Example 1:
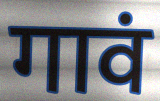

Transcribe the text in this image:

गावं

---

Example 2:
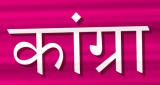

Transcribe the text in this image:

कांग्रा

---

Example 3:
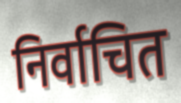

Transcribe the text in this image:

निर्वाचित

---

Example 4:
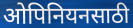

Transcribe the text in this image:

ओपिनियनसाठी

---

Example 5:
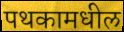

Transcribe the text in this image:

पथकामधील